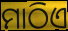
ମାଠିଏ